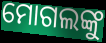
ମୋଗଲଙ୍କୁ